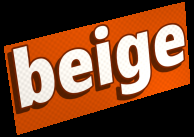
beige